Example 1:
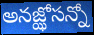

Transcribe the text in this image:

అనజ్ఝోసన్నో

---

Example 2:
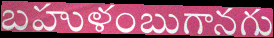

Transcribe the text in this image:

బహుళంబుగానగు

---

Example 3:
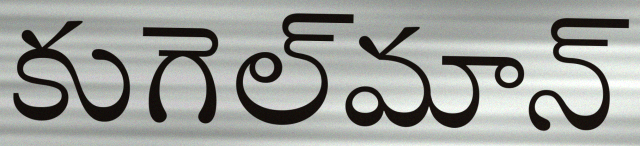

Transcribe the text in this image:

కుగెల్‌మాన్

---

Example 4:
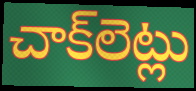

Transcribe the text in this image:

చాక్‌లెట్లు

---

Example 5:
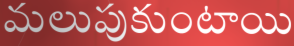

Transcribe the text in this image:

మలుపుకుంటాయి